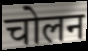
चोलन